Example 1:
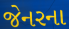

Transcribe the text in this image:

જેનરના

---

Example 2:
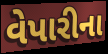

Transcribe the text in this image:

વેપારીના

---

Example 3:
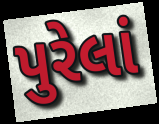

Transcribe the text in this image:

પુરેલાં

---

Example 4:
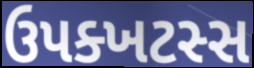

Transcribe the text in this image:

ઉપક્ખટસ્સ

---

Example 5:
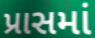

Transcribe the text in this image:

પ્રાસમાં